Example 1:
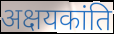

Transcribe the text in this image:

अक्षयकांति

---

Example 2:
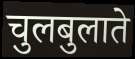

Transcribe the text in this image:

चुलबुलाते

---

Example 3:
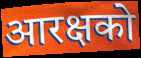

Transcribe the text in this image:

आरक्षको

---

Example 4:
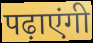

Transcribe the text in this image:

पढ़ाएंगी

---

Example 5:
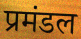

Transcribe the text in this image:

प्रमंडल